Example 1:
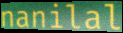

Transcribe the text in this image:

nanilal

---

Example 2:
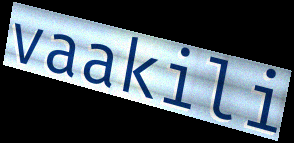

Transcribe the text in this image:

vaakili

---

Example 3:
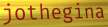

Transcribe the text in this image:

jothegina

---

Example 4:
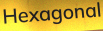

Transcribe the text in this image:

Hexagonal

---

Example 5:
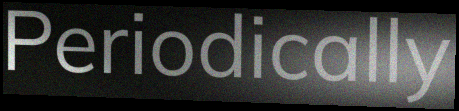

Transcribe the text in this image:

Periodically